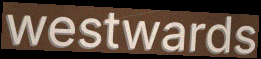
westwards